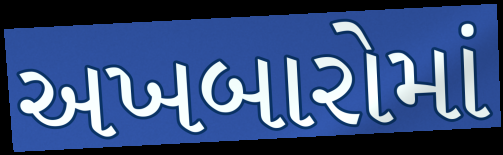
અખબારોમાં